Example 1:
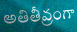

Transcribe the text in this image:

అతితీవ్రంగా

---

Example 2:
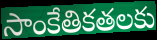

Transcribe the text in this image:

సాంకేతికతలకు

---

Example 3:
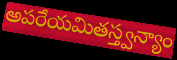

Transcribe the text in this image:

అపరేయమితస్త్వన్యాం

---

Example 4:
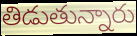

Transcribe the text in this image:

తిడుతున్నారు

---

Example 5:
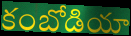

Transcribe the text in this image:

కంబోడియా